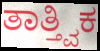
ತಾತ್ತ್ವಿಕ